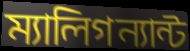
ম্যালিগন্যান্ট